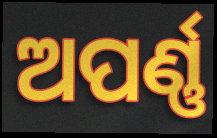
ଅପର୍ଣ୍ଣ